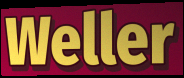
Weller